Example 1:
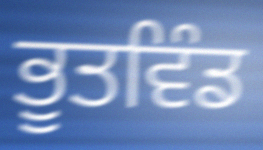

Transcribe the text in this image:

ਭੂਤਵਿੰਡ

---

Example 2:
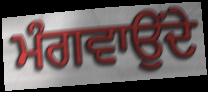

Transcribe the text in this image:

ਮੰਗਵਾਉਂਦੇ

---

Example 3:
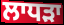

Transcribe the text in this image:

ਲਾਧੜਾ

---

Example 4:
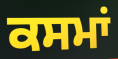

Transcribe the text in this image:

ਕਸਮਾਂ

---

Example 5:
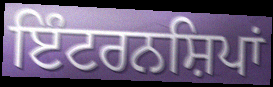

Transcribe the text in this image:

ਇੰਟਰਨਸ਼ਿਪਾਂ